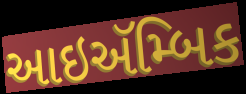
આઇઍમ્બિક